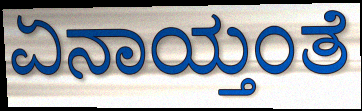
ಏನಾಯ್ತಂತೆ